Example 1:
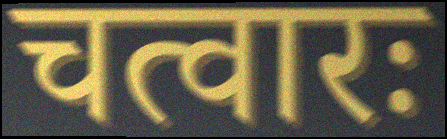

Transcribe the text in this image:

चत्वारः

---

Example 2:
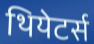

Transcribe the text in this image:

थियेटर्स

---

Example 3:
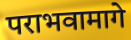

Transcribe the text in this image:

पराभवामागे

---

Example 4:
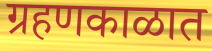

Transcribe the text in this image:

ग्रहणकाळात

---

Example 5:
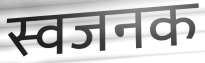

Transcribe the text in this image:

स्वजनक